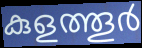
കുളത്തൂർ